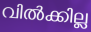
വിൽക്കില്ല